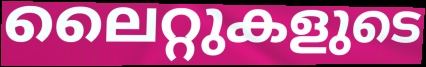
ലൈറ്റുകളുടെ